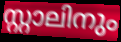
സ്റ്റാലിനും